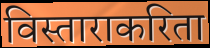
विस्ताराकरिता